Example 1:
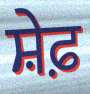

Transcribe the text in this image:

ਸ਼ੇਫ਼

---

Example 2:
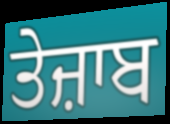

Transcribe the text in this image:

ਤੇਜ਼ਾਬ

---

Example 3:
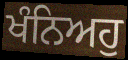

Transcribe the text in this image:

ਖੰਨਿਅਹੁ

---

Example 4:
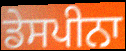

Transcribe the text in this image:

ਡੇਸਪੀਨਾ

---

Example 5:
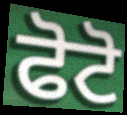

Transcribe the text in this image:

ਫੋਟੋ